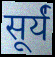
सूर्य॑